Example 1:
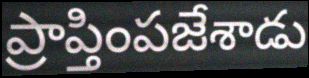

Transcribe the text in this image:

ప్రాప్తింపజేశాడు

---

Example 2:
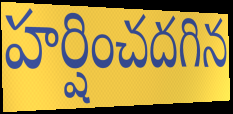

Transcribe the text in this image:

హర్షించదగిన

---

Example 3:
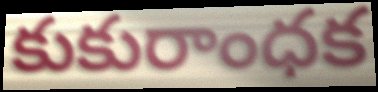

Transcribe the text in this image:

కుకురాంధక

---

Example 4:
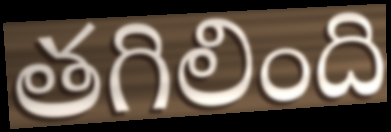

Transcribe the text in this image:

తగిలింది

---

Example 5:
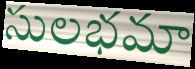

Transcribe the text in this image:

సులభమా